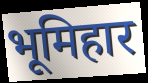
भूमिहार